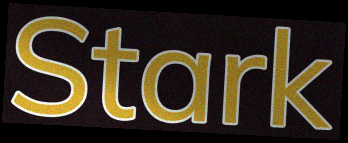
Stark